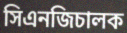
সিএনজিচালক